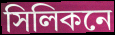
সিলিকনে